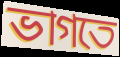
ভাগতে